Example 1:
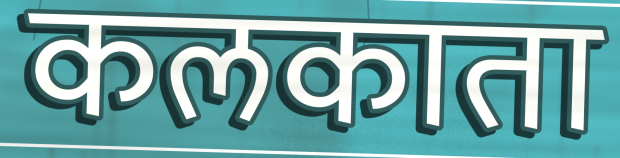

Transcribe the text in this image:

कलकाता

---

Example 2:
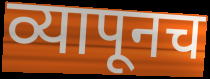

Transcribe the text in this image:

व्यापूनच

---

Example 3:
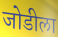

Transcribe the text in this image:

जोडीला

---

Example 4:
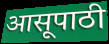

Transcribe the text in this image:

आसूपाठी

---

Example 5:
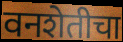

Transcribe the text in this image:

वनशेतीचा